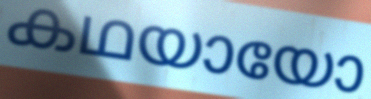
കഥയായോ